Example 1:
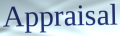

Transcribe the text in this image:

Appraisal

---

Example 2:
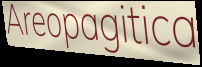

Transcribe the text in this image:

Areopagitica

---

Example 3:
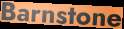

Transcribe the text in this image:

Barnstone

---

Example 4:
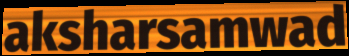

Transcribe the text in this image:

aksharsamwad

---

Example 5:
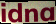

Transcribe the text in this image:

idna